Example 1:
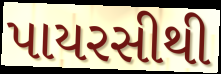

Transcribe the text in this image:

પાયરસીથી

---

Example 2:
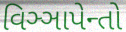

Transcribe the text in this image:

વિઞ્ઞાપેન્તો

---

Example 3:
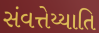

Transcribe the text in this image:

સંવત્તેય્યાતિ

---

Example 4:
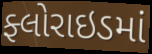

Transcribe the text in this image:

ફ્લોરાઇડમાં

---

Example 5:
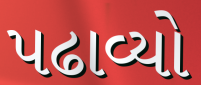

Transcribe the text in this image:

પઢાવ્યો